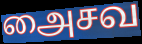
அைசவ